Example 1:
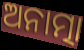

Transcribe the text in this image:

ଅନାତ୍ମା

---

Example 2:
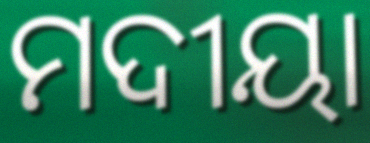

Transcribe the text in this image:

ମଦୀୟା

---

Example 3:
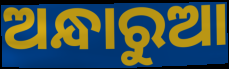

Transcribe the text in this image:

ଅନ୍ଧାରୁଆ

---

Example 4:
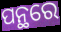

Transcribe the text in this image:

ପନ୍ଥରେ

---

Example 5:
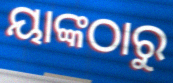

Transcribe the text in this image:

ୟାଙ୍କଠାରୁ